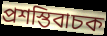
প্রশস্তিবাচক